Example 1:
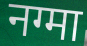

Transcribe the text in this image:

नग्मा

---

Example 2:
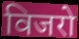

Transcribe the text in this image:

विजरो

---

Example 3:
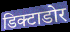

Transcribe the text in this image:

डिक्टाडोर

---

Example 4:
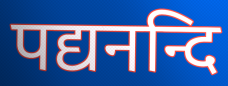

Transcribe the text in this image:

पद्यनन्दि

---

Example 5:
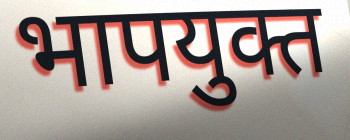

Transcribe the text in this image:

भापयुक्त